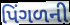
પિંગળની